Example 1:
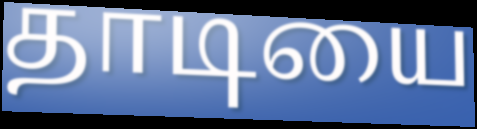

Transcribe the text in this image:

தாடியை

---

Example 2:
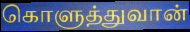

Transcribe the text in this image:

கொளுத்துவான்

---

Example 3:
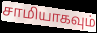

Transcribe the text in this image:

சாமியாகவும்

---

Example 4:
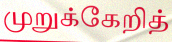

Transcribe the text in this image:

முறுக்கேறித்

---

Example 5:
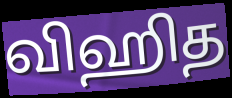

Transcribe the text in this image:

விஹித